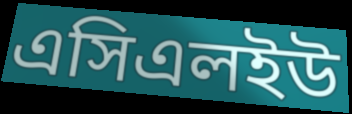
এসিএলইউ